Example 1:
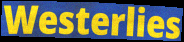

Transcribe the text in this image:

Westerlies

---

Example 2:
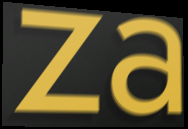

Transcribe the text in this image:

za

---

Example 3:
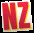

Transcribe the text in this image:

NZ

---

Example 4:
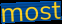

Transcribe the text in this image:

most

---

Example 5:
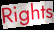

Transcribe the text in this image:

Rights